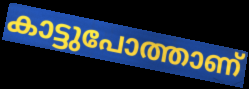
കാട്ടുപോത്താണ്